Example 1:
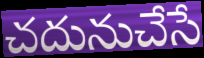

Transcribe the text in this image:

చదునుచేసే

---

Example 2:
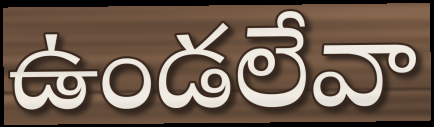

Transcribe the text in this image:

ఉండలేవా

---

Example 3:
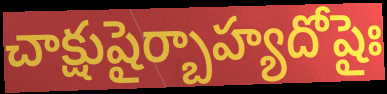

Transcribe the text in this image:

చాక్షుషైర్బాహ్యదోషైః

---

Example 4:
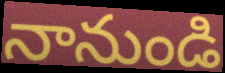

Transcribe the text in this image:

నానుండి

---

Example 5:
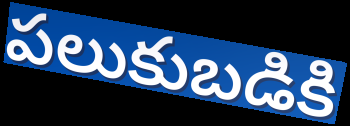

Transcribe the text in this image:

పలుకుబడికి